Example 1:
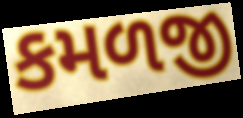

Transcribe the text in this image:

કમળજી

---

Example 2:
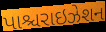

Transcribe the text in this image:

પાશ્ચરાઇઝેશન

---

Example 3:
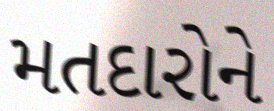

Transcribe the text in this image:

મતદારોને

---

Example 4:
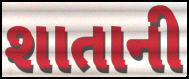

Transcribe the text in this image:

શાતાની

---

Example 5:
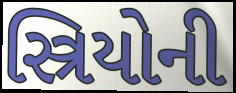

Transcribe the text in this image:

સ્ત્રિયોની